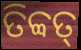
ତିବ୍ବତ୍